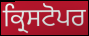
ਕ੍ਰਿਸਟੋਪਰ